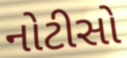
નોટીસો